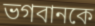
ভগবানকে